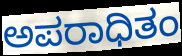
ಅಪರಾಧಿತಂ